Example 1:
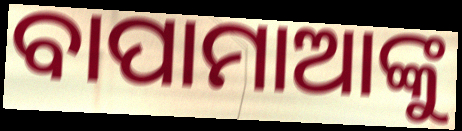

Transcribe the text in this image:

ବାପାମାଆଙ୍କୁ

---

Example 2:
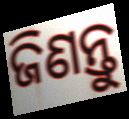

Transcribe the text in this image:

ଜିଣନ୍ତୁ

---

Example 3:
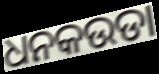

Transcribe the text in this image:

ଧନକଉଡା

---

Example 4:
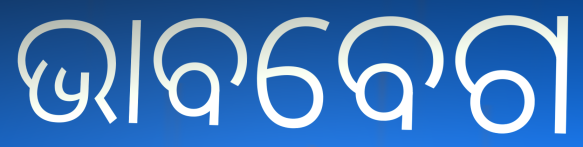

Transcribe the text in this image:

ଭାବବେଗ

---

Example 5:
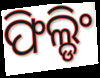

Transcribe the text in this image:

ଫିଲ୍ଡିଂ